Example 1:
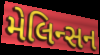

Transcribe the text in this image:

મેલિન્સન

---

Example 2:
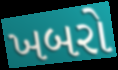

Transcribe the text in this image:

ખબરો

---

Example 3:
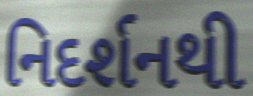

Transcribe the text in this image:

નિદર્શનથી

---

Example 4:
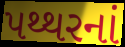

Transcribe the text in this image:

પથ્થરનાં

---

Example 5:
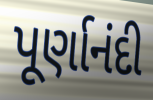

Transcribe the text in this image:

પૂર્ણાનંદી